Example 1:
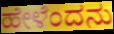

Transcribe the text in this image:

ಹೇಳೆಂದನು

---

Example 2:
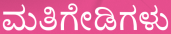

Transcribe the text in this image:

ಮತಿಗೇಡಿಗಳು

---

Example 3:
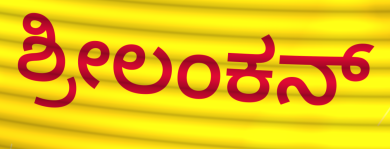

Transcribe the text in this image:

ಶ್ರೀಲಂಕನ್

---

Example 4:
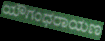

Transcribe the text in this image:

ಯೌಗಂಧರಾಯಣ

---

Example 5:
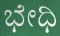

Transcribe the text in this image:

ಭೇಧಿ